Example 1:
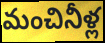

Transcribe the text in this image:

మంచినీళ్ల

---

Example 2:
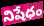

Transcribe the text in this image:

నిషేధం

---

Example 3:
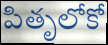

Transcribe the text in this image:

పితృలోకో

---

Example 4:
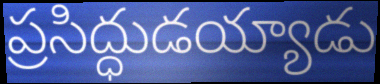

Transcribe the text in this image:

ప్రసిద్ధుడయ్యాడు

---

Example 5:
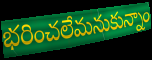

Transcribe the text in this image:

భరించలేమనుకున్నాం